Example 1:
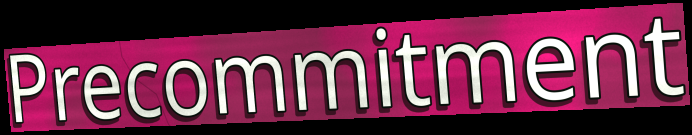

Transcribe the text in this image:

Precommitment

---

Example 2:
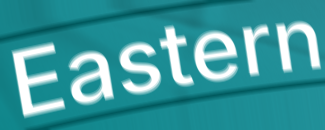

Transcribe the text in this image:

Eastern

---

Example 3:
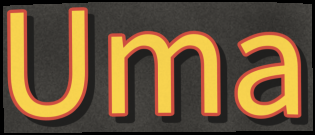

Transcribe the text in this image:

Uma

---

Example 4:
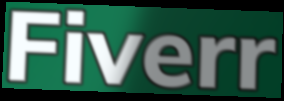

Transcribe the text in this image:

Fiverr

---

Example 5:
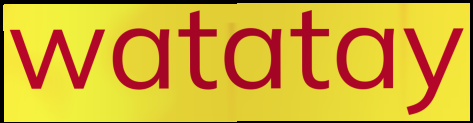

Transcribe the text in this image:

watatay